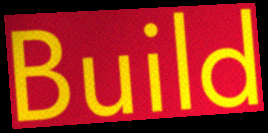
Build